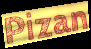
Pizan